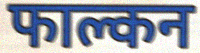
फाल्कन